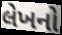
લેખનો